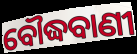
ବୌଦ୍ଧବାଣୀ